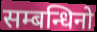
सम्बन्धिनो